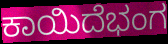
ಕಾಯಿದೆಭಂಗ